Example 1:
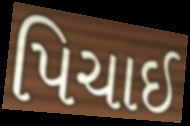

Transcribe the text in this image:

પિચાઈ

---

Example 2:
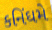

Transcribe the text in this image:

કનિંઘમે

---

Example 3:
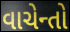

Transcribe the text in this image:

વાચેન્તો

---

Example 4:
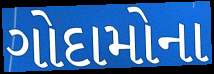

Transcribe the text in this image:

ગોદામોના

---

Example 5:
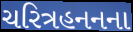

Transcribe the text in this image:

ચરિત્રહનનના